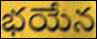
భయేన